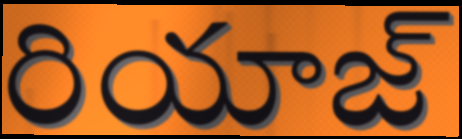
రియాజ్